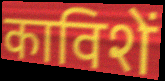
काविशें